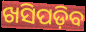
ଖସିପଡ଼ିବ